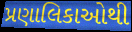
પ્રણાલિકાઓથી